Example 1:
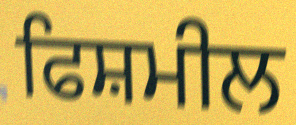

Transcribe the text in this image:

ਫਿਸ਼ਮੀਲ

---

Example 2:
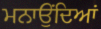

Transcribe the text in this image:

ਮਨਾਉਂਦਿਆਂ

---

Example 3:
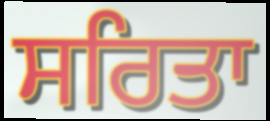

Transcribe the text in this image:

ਸਰਿਤਾ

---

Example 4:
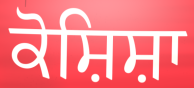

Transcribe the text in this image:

ਕੋਸ਼ਿਸ਼ਾ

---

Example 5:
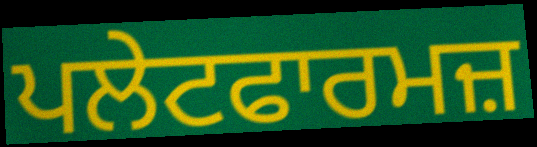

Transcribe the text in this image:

ਪਲੇਟਫਾਰਮਜ਼